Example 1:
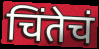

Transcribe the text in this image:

चिंतेचं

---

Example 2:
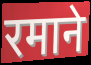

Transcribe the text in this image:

रमाने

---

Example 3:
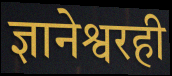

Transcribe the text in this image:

ज्ञानेश्वरही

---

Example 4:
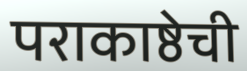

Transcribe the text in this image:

पराकाष्ठेची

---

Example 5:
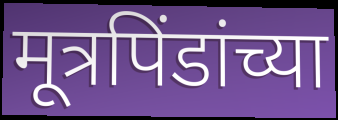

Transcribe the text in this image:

मूत्रपिंडांच्या